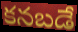
కనబడే